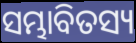
ସମ୍ଭାବିତସ୍ୟ